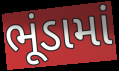
ભૂંડામાં